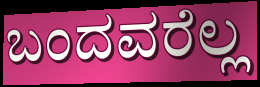
ಬಂದವರೆಲ್ಲ